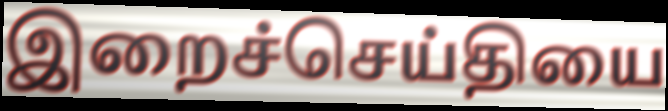
இறைச்செய்தியை